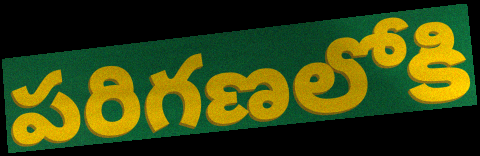
పరిగణలోకి